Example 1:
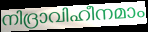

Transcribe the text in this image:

നിദ്രാവിഹീനമാം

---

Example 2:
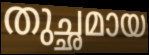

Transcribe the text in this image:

തുച്ഛമായ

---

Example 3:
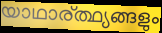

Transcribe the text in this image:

യാഥാര്ത്ഥ്യങ്ങളും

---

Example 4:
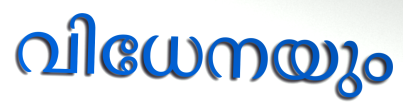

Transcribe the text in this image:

വിധേനയും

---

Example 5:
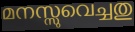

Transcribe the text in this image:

മനസ്സുവെച്ചതു